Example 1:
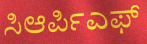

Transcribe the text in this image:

ಸಿಆರ್ಪಿಎಫ್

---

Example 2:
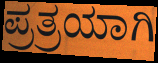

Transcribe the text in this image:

ಪ್ರತ್ರಯಾಗಿ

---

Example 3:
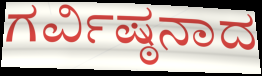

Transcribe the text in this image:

ಗರ್ವಿಷ್ಠನಾದ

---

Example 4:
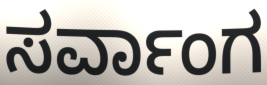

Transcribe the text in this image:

ಸರ್ವಾಂಗ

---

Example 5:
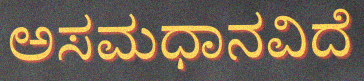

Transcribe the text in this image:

ಅಸಮಧಾನವಿದೆ